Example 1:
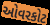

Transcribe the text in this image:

ઓવરકોટ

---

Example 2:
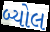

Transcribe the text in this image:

બ્યોલ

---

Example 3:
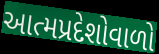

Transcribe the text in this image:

આત્મપ્રદેશોવાળો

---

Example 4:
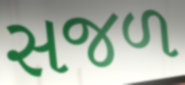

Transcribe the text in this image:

સજળ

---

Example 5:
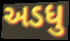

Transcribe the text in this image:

અડધુ